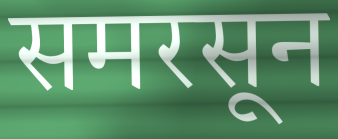
समरसून